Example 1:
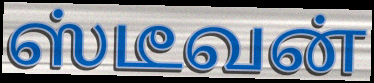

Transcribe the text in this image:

ஸ்டீவன்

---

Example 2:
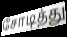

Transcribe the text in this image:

சோடித்து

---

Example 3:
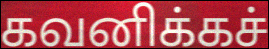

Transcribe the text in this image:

கவனிக்கச்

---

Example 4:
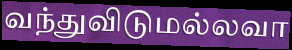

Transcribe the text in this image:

வந்துவிடுமல்லவா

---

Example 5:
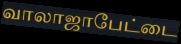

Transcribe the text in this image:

வாலாஜாபேட்டை